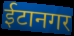
ईटानगर